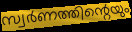
സ്വർണത്തിന്റെയും